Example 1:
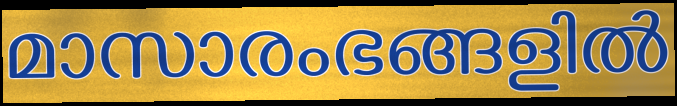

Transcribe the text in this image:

മാസാരംഭങ്ങളിൽ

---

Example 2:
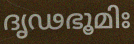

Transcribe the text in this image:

ദൃഢഭൂമിഃ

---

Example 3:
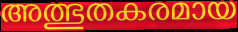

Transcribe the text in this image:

അത്ഭുതകരമായ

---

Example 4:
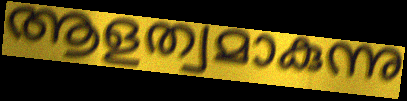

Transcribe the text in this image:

ആളത്വമാകുന്നു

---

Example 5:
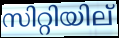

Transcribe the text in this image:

സിറ്റിയില്